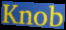
Knob